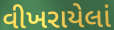
વીખરાયેલાં